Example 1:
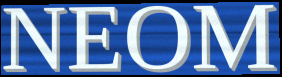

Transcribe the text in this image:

NEOM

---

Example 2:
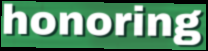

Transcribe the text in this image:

honoring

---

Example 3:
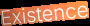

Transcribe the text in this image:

Existence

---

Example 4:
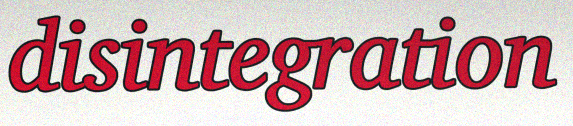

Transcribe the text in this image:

disintegration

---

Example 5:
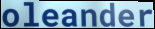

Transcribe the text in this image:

oleander